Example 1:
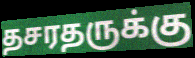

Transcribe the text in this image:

தசரதருக்கு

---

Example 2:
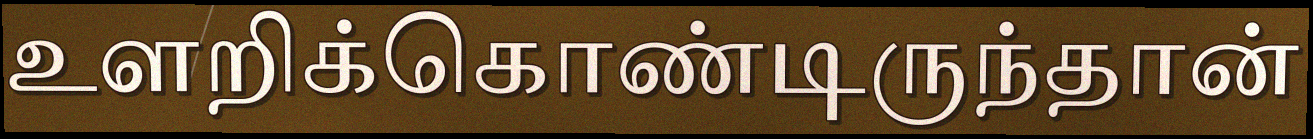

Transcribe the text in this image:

உளறிக்கொண்டிருந்தான்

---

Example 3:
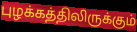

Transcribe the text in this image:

புழக்கத்திலிருக்கும்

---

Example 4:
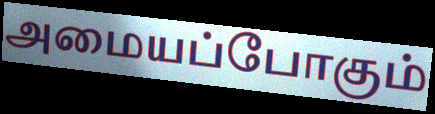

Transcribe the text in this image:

அமையப்போகும்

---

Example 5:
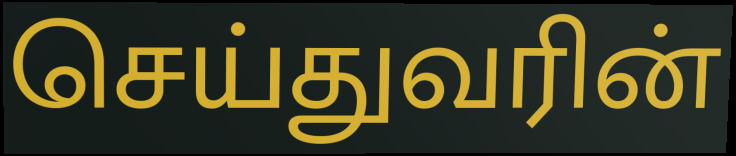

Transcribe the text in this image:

செய்துவரின்